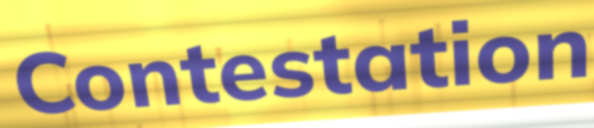
Contestation